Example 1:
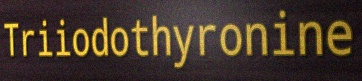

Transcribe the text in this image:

Triiodothyronine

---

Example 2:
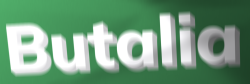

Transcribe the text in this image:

Butalia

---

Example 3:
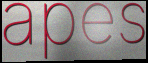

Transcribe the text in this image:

apes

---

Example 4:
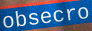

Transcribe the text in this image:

obsecro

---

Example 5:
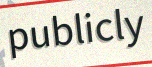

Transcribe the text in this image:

publicly